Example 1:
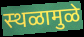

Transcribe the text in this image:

स्थळामुळे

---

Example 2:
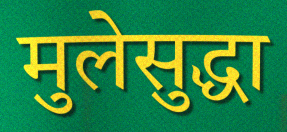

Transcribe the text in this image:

मुलेसुद्धा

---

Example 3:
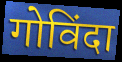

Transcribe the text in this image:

गोविंदा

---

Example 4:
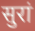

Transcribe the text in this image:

सुरां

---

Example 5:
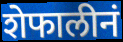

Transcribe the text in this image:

शेफालीनं